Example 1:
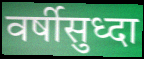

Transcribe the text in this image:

वर्षीसुध्दा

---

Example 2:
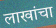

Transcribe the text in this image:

लाखांचा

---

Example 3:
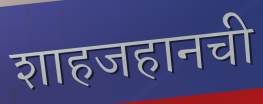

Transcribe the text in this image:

शाहजहानची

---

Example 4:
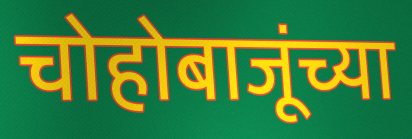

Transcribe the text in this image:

चोहोबाजूंच्या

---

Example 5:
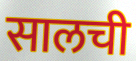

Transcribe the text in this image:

सालची